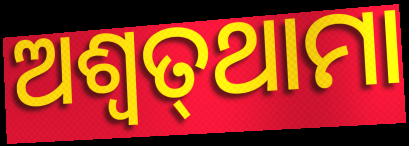
ଅଶ୍ଵତ୍‌ଥାମା